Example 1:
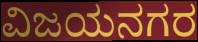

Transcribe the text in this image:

ವಿಜಯನಗರ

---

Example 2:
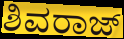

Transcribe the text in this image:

ಶಿವರಾಜ್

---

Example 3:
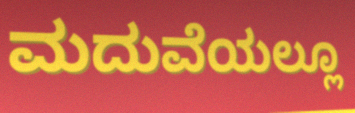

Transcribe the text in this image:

ಮದುವೆಯಲ್ಲೂ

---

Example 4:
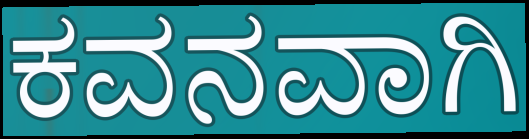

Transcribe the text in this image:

ಕವನವಾಗಿ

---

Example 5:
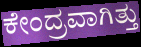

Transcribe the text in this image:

ಕೇಂದ್ರವಾಗಿತ್ತು